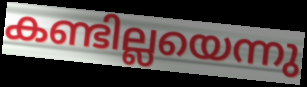
കണ്ടില്ലയെന്നു